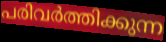
പരിവർത്തിക്കുന്ന